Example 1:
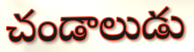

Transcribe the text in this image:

చండాలుడు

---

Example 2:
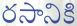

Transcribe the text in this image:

రసానికి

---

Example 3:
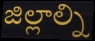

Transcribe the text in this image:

జిల్లాల్ని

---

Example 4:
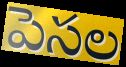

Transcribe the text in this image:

పెసల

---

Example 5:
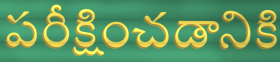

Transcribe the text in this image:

పరీక్షించడానికి